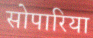
सोपारिया